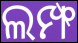
ଲମ୍ଫ